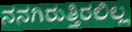
ನನಗಿರುತ್ತಿರಲಿಲ್ಲ